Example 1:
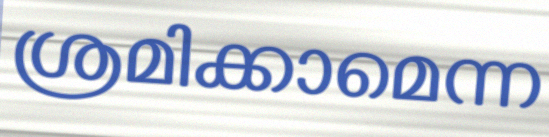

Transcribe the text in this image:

ശ്രമിക്കാമെന്ന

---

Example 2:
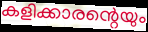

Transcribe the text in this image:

കളിക്കാരന്റെയും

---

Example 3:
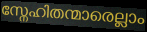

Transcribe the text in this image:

സ്നേഹിതന്മാരെല്ലാം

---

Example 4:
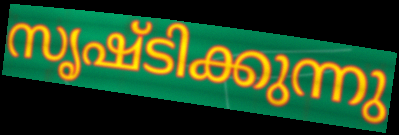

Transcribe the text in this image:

സൃഷ്ടിക്കുന്നു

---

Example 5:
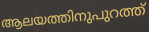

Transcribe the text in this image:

ആലയത്തിനുപുറത്ത്